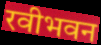
रवीभवन